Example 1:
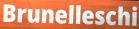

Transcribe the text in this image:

Brunelleschi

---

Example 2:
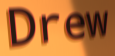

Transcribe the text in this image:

Drew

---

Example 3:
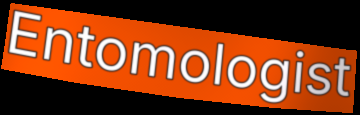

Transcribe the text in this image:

Entomologist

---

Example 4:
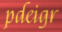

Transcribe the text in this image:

pdeigr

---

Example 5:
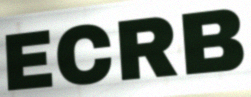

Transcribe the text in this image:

ECRB